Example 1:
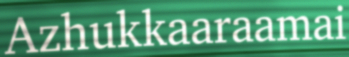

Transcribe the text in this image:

Azhukkaaraamai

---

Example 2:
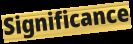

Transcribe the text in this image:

Significance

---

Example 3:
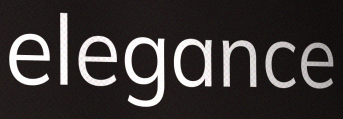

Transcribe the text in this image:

elegance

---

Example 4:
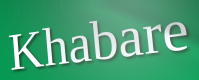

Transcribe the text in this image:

Khabare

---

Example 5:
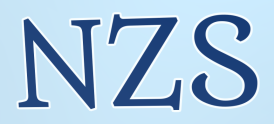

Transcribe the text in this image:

NZS